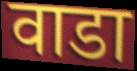
वाडा